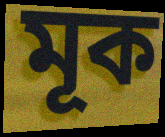
মূক